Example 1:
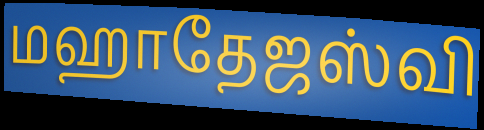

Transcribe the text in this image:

மஹாதேஜஸ்வி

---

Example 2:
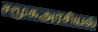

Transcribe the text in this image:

சமூகஅரசியல்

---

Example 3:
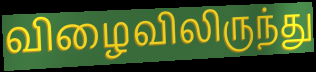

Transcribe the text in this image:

விழைவிலிருந்து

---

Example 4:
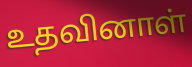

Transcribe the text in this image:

உதவினாள்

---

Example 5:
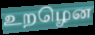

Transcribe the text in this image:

உறழென